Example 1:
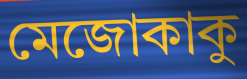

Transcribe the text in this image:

মেজোকাকু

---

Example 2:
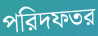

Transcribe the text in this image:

পরিদফতর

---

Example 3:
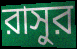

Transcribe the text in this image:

রাসুর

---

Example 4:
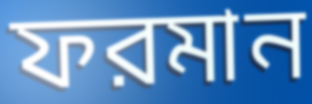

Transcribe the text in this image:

ফরমান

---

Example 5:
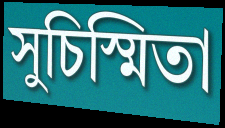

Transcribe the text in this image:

সুচিস্মিতা